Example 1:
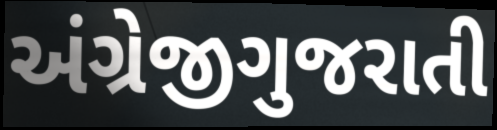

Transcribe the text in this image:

અંગ્રેજીગુજરાતી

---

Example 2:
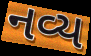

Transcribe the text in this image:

નવ્ય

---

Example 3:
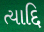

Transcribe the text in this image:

ત્યાદ્દિ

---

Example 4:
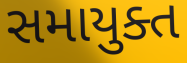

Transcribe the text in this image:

સમાયુક્ત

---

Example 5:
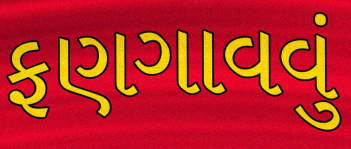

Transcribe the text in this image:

ફણગાવવું